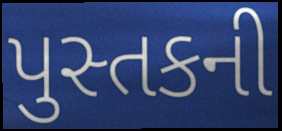
પુસ્તકની